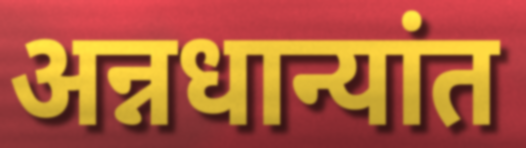
अन्नधान्यांत